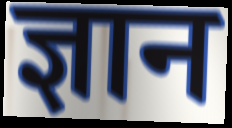
ज्ञान